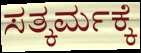
ಸತ್ಕರ್ಮಕ್ಕೆ